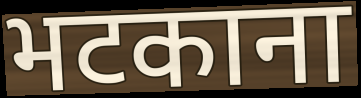
भटकाना